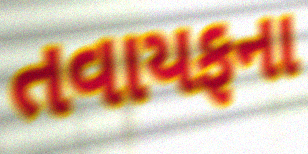
તવાયફના